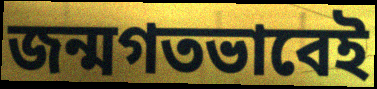
জন্মগতভাবেই